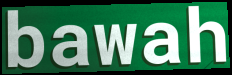
bawah